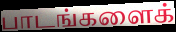
பாடங்களைக்